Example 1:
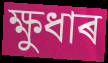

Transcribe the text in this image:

ক্ষুধাৰ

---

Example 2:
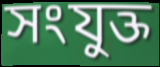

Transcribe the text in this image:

সংযুক্ত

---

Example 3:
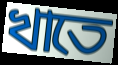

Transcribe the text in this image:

খাতে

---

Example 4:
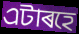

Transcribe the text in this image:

এটাৰহে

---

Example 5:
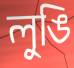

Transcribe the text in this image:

লুঙি